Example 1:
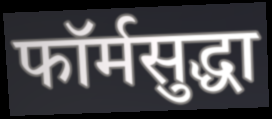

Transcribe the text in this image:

फॉर्मसुद्धा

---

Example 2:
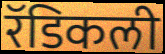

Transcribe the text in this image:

रॅडिकली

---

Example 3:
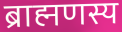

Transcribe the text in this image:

ब्राह्मणस्य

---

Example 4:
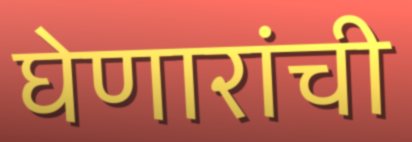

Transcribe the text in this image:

घेणारांची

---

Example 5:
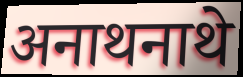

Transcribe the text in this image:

अनाथनाथे